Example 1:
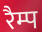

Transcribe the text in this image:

रैम्प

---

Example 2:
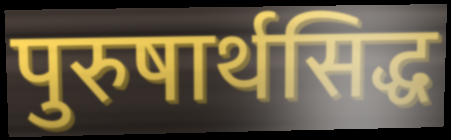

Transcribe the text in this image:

पुरुषार्थसिद्ध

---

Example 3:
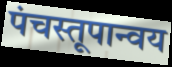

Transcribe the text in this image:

पंचस्तूपान्वय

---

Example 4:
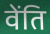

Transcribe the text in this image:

वेंति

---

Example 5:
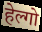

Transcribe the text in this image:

हेल्गो